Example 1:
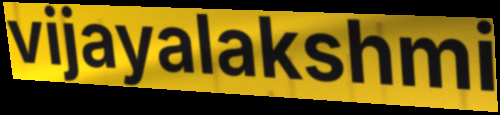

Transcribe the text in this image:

vijayalakshmi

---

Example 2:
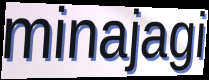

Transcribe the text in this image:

minajagi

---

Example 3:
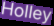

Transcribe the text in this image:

Holley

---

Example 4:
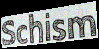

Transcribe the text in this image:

Schism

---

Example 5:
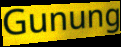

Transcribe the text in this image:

Gunung